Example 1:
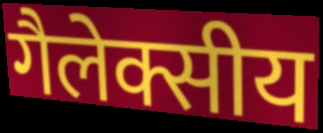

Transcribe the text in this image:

गैलेक्सीय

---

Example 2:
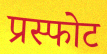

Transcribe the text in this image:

प्रस्फोट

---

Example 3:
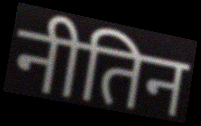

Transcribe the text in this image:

नीतिन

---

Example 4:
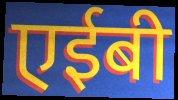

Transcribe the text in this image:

एईबी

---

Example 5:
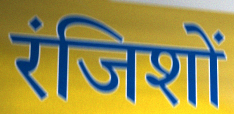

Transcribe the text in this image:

रंजिशों